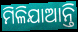
ମିଳିଯାଆନ୍ତି